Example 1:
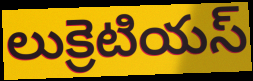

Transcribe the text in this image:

లుక్రెటియస్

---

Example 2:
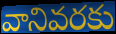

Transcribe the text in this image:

వానివరకు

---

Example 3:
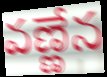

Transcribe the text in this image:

వణ్ణేన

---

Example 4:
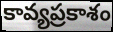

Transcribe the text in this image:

కావ్యప్రకాశం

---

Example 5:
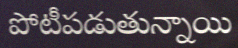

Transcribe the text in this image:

పోటీపడుతున్నాయి